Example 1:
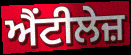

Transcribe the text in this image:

ਐਂਟੀਲੇਜ਼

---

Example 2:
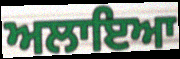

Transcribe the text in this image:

ਅਲਾਇਆ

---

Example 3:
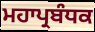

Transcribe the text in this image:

ਮਹਾਪ੍ਰਬੰਧਕ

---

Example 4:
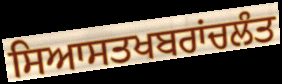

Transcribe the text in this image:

ਸਿਆਸਤਖਬਰਾਂਚਲੰਤ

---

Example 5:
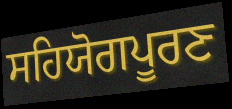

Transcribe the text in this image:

ਸਹਿਯੋਗਪੂਰਣ